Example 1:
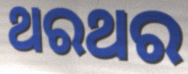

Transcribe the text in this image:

ଥରଥର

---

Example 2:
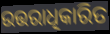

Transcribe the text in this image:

ଉତ୍ତରାଧିକାରିତ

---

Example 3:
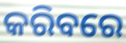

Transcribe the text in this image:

କରିବରେ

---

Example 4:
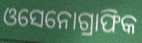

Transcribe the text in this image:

ଓସେନୋଗ୍ରାଫିକ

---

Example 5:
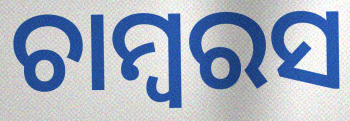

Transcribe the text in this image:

ଚାମ୍ବରସ